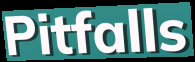
Pitfalls